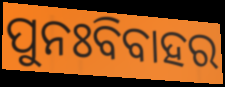
ପୁନଃବିବାହର